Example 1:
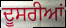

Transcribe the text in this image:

ਦੂਸਰੀਆਂ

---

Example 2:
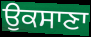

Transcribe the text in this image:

ਉਕਸਾਣਾ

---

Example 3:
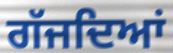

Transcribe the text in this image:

ਗੱਜਦਿਆਂ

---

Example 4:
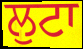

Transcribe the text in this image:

ਲੁਟਾ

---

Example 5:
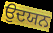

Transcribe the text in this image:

ਉਦਯਨ